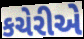
કચેરીએ